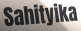
Sahityika